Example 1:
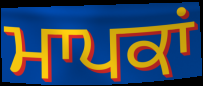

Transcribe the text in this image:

ਮਾਪਕਾਂ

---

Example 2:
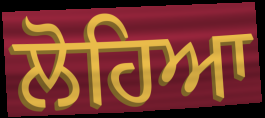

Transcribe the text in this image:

ਲੋਹਿਆ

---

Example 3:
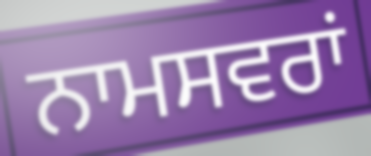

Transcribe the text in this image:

ਨਾਮਸਵਰਾਂ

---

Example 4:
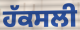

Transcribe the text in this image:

ਹੱਕਸਲੀ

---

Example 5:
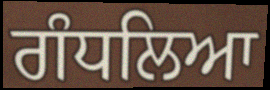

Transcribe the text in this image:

ਗੰਧਲਿਆ